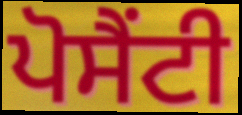
ਪੋਸੈਂਟੀ